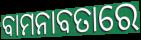
ବାମନାବତାରେ